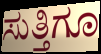
ಸುತ್ತಿಗೂ